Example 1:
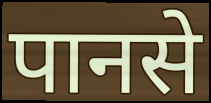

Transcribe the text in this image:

पानसे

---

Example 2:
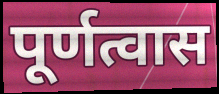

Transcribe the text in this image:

पूर्णत्वास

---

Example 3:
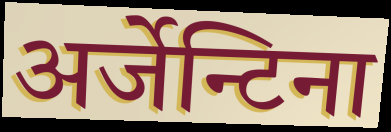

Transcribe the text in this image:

अर्जेन्टिना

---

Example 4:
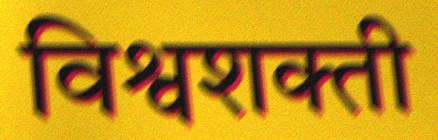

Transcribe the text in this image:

विश्वशक्ती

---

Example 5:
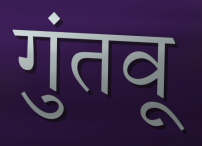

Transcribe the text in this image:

गुंतवू